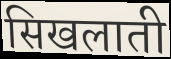
सिखलाती